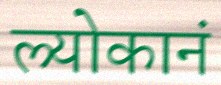
ल्योकानं